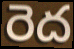
రెద